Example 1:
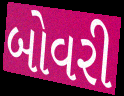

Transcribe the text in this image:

બોવરી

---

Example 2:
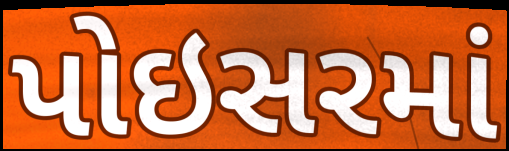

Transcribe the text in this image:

પોઇસરમાં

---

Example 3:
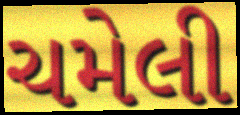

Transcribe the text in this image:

ચમેલી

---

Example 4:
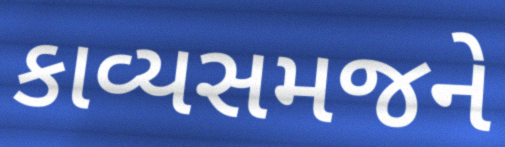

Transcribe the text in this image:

કાવ્યસમજને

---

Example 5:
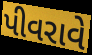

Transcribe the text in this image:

પીવરાવે